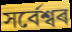
সৰ্বেশ্বৰ